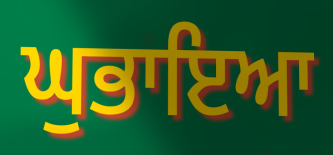
ਘੁਭਾਇਆ